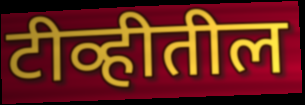
टीव्हीतील